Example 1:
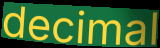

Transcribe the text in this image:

decimal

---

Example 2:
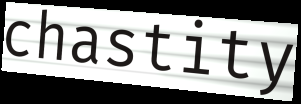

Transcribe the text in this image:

chastity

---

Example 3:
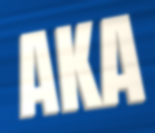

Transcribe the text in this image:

AKA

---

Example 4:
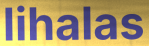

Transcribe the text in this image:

lihalas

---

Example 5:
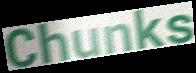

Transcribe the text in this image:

Chunks